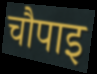
चौपाइ